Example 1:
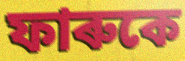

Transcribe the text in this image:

ফাৰুকে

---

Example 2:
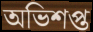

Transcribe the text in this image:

অভিশপ্ত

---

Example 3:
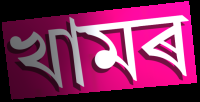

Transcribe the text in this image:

খামৰ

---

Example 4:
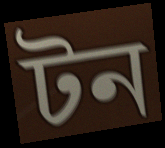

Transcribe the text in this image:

টন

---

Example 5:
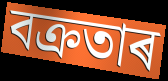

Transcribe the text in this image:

বক্ৰতাৰ